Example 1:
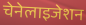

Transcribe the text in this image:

चेनेलाइजेशन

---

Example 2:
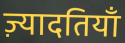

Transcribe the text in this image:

ज़्यादतियाँ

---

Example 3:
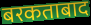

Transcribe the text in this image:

बरकताबाद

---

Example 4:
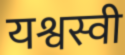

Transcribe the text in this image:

यश्वस्वी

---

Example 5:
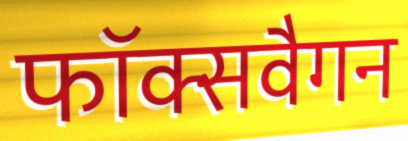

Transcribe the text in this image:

फॉक्सवैगन